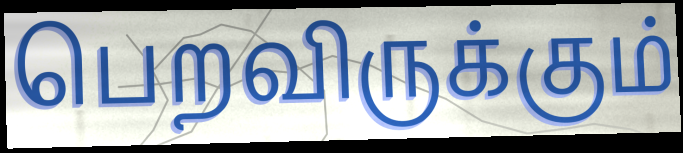
பெறவிருக்கும்